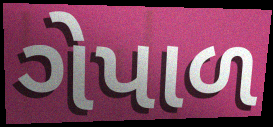
ગેપાળ